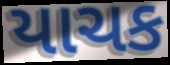
યાચક